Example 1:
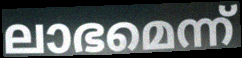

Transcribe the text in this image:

ലാഭമെന്ന്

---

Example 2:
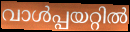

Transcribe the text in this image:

വാൾപ്പയറ്റിൽ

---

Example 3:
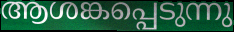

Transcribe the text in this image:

ആശങ്കപ്പെടുന്നു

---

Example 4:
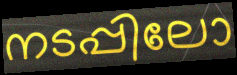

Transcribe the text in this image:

നടപ്പിലോ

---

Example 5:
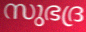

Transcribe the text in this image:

സുഭദ്ര